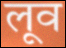
लूव